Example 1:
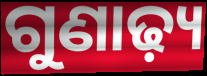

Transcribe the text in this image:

ଗୁଣାଢ଼୍ୟ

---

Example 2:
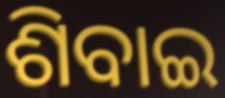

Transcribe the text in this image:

ଶିବାଇ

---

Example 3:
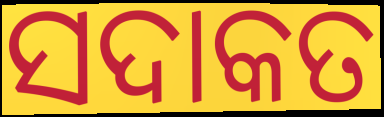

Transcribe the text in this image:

ସଦାକତ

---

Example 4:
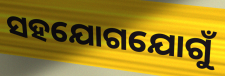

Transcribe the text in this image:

ସହଯୋଗଯୋଗୁଁ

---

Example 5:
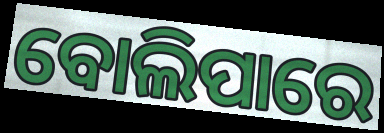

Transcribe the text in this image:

ବୋଲିପାରେ